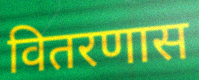
वितरणास